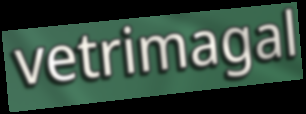
vetrimagal